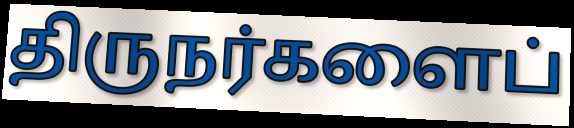
திருநர்களைப்